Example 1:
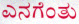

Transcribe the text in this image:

ಎನಗೆಂತು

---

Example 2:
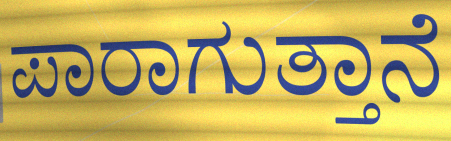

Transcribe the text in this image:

ಪಾರಾಗುತ್ತಾನೆ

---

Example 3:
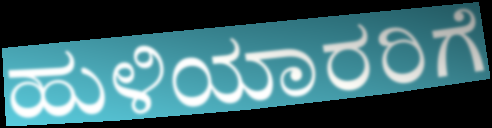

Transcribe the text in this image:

ಹುಳಿಯಾರರಿಗೆ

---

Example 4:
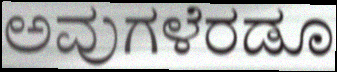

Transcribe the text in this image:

ಅವುಗಳೆರಡೂ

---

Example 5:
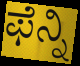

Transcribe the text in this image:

ಫೆನ್ನಿ